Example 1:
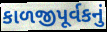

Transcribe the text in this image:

કાળજીપૂર્વકનું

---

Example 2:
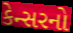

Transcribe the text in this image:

કેન્સરનો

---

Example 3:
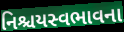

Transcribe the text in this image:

નિશ્ચયસ્વભાવના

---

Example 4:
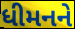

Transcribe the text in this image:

ધીમનને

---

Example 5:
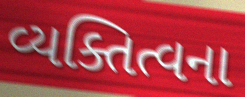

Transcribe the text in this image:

વ્યક્તિત્વના